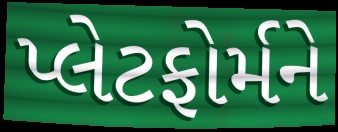
પ્લેટફોર્મને